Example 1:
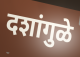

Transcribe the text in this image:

दशांगुळे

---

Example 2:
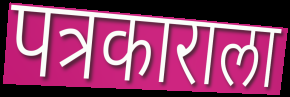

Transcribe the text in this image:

पत्रकाराला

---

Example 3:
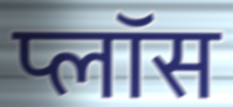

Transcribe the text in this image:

प्लॉस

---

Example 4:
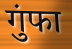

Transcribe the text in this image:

गुंफा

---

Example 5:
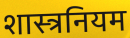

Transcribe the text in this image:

शास्त्रनियम